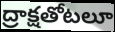
ద్రాక్షతోటలూ